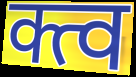
क्त्व